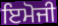
ਇਮੋਜੀ